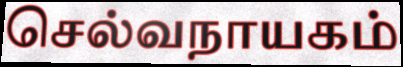
செல்வநாயகம்